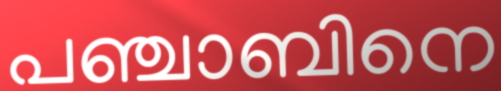
പഞ്ചാബിനെ